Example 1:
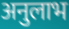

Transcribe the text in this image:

अनुलाभ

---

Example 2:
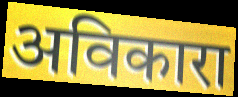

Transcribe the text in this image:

अविकारा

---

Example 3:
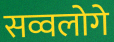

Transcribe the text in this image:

सव्वलोगे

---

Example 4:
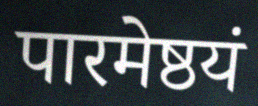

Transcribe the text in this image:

पारमेष्ठयं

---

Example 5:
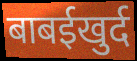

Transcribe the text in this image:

बाबईखुर्द